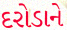
દરોડાને